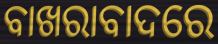
ବାଖରାବାଦରେ